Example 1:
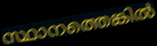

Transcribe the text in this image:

സ്ഥാനത്തെങ്കിൽ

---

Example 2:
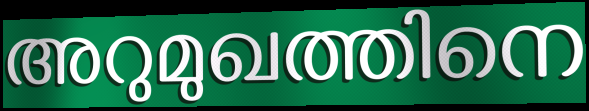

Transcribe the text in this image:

അറുമുഖത്തിനെ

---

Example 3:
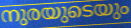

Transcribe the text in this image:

നുരയുടെയും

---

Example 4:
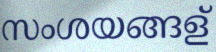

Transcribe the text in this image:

സംശയങ്ങള്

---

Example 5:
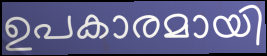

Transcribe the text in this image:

ഉപകാരമായി